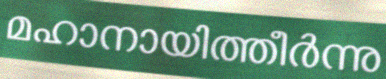
മഹാനായിത്തീർന്നു